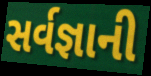
સર્વજ્ઞાની